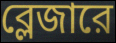
ব্লেজারে